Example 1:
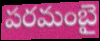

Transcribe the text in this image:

పరమంబై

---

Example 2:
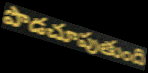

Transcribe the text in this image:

పొడచూపుతుంది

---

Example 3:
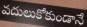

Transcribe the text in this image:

వదులుకోకుండానే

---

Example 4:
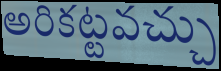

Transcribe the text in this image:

అరికట్టవచ్చు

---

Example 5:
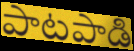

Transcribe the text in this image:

పాటపాడి